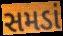
સમડાં